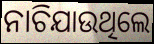
ନାଚିଯାଉଥିଲେ